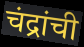
चंद्रांची